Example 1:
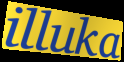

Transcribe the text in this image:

illuka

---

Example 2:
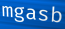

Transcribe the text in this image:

mgasb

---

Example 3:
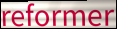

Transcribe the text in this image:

reformer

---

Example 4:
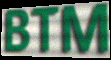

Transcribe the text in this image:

BTM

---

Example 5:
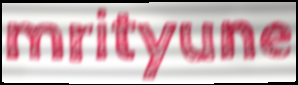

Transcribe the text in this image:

mrityune